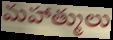
మహాత్ములు